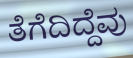
ತೆಗೆದಿದ್ದೆವು